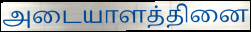
அடையாளத்தினை